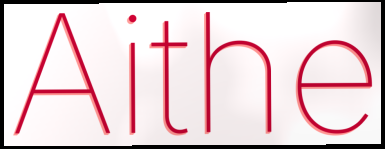
Aithe